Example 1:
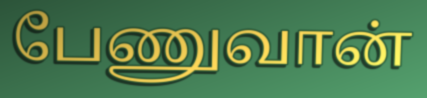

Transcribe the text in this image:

பேணுவான்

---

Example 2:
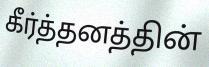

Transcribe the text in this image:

கீர்த்தனத்தின்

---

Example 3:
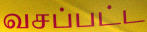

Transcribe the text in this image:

வசப்பட்ட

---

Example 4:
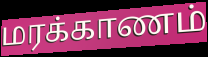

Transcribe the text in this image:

மரக்காணம்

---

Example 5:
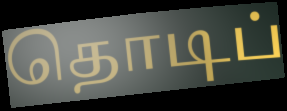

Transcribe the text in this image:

தொடிப்